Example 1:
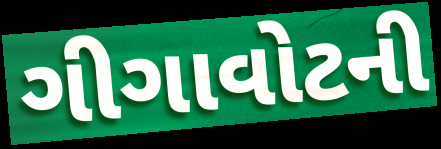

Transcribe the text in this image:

ગીગાવોટની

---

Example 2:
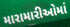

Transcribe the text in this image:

મારામારીઓમાં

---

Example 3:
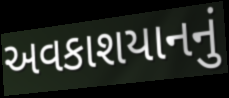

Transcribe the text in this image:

અવકાશયાનનું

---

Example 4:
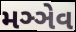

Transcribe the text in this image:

મઞ્ઞેવ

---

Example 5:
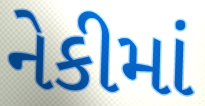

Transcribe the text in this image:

નેકીમાં